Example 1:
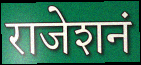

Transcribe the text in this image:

राजेशनं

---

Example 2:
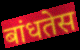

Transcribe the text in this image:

बांधतेस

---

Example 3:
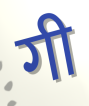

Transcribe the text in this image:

गी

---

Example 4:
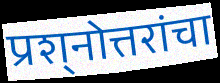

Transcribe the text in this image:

प्रश्नोत्तरांचा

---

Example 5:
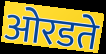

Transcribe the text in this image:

ओरडते